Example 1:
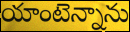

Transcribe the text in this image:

యాంటెన్నాను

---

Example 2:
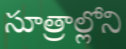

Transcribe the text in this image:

సూత్రాల్లోని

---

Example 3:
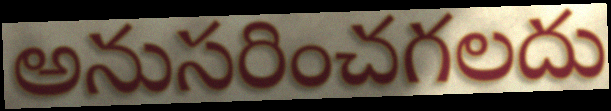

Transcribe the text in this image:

అనుసరించగలదు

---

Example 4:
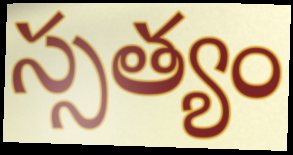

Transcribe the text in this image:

స్సత్యం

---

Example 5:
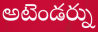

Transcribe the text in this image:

అటెండర్ను